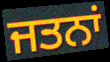
ਜਤਨਾਂ